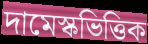
দামেস্কভিত্তিক